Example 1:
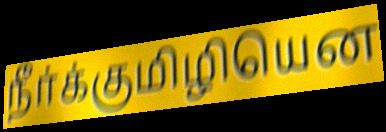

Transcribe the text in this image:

நீர்க்குமிழியென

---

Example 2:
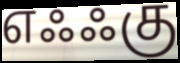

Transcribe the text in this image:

எஃஃகு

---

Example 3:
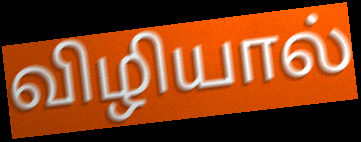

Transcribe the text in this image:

விழியால்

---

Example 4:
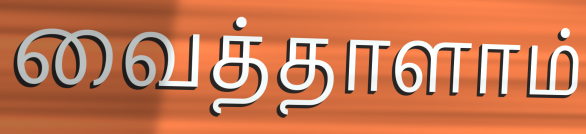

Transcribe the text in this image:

வைத்தாளாம்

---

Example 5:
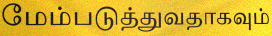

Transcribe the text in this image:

மேம்படுத்துவதாகவும்